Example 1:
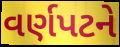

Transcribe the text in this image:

વર્ણપટને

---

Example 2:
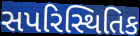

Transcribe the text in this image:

સપરિસ્થિતિક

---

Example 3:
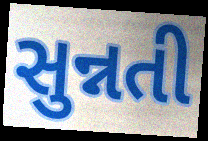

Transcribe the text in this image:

સુન્નતી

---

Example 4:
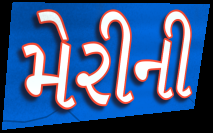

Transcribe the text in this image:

મેરીની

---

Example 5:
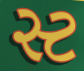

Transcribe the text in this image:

સ્ટ